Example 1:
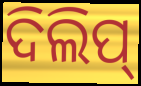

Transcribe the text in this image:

ଦିଲିପ୍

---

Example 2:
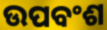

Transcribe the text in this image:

ଉପବଂଶ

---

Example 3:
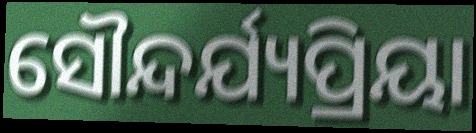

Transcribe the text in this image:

ସୌନ୍ଦର୍ଯ୍ୟପ୍ରିୟା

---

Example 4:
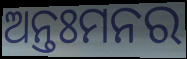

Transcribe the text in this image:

ଅନ୍ତଃମନର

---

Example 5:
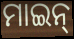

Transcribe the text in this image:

ମାଇନ୍